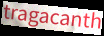
tragacanth